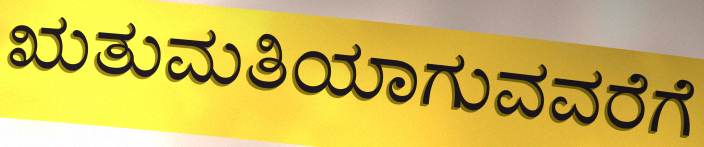
ಋತುಮತಿಯಾಗುವವರೆಗೆ